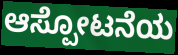
ಆಸ್ಪೋಟನೆಯ